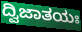
ದ್ವಿಜಾತಯಃ